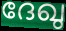
ദേഖു